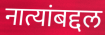
नात्यांबद्दल